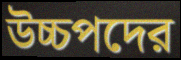
উচ্চপদের